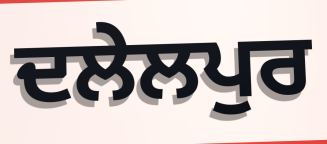
ਦਲੇਲਪੁਰ